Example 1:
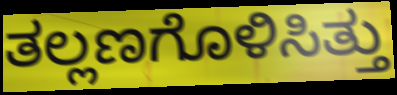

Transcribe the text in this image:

ತಲ್ಲಣಗೊಳಿಸಿತ್ತು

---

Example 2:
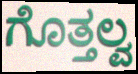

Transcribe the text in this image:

ಗೊತ್ತಲ್ವ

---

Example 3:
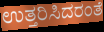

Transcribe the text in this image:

ಉತ್ತರಿಸಿದರಂತೆ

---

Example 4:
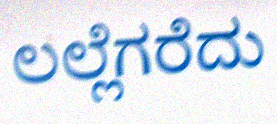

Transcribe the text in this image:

ಲಲ್ಲೆಗರೆದು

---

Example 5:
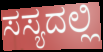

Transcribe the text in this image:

ಸಸ್ಯದಲ್ಲಿ